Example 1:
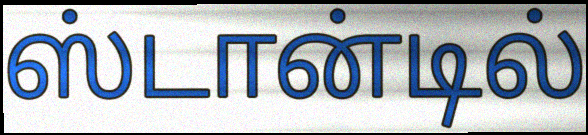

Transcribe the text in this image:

ஸ்டான்டில்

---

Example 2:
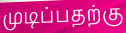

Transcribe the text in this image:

முடிப்பதற்கு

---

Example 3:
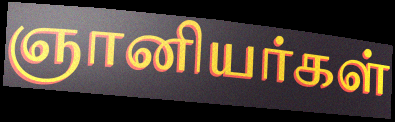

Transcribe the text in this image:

ஞானியர்கள்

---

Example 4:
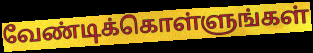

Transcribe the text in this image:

வேண்டிக்கொள்ளுங்கள்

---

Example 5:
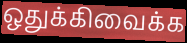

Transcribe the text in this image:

ஒதுக்கிவைக்க